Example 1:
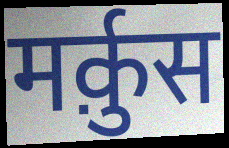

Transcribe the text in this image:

मर्क़ुस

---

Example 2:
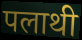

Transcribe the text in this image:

पलाथी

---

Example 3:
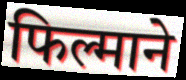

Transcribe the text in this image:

फिल्‍माने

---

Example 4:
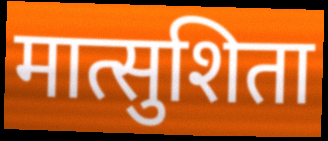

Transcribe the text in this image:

मात्सुशिता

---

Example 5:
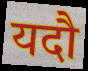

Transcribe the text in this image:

यदौ